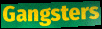
Gangsters